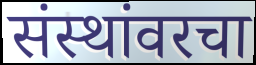
संस्थांवरचा